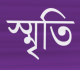
স্মৃতি